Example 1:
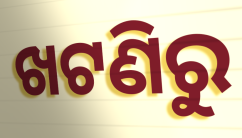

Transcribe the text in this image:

ଖଟଣିରୁ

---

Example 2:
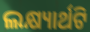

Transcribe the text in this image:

ଲକ୍ଷ୍ୟାର୍ଥଟି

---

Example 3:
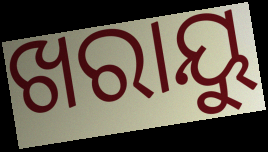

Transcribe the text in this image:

ଖରାୟୁ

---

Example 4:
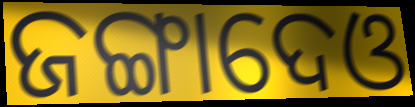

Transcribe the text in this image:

ଜଙ୍ଗାଦେଓ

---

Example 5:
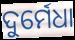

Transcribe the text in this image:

ଦୁର୍ମେଧା